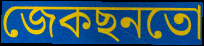
জেকছনতো